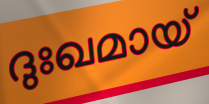
ദുഃഖമായ്